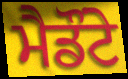
ਮੈਡੌਂਟੇ